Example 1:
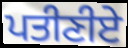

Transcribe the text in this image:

ਪਤੀਣੀਏ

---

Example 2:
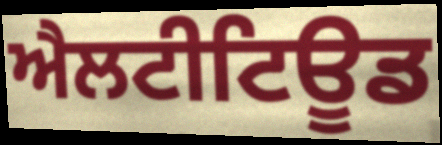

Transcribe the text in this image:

ਐਲਟੀਟਿਊਡ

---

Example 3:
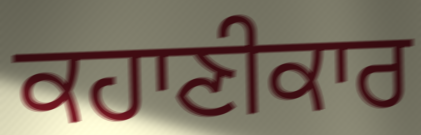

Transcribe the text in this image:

ਕਹਾਣੀਕਾਰ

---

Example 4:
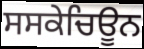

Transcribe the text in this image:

ਸਸਕੇਚਿਊਨ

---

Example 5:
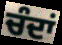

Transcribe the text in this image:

ਚੰਦਾਂ